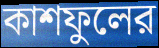
কাশফুলের